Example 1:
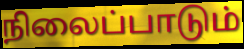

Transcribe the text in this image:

நிலைப்பாடும்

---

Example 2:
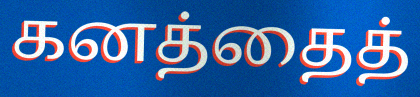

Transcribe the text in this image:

கனத்தைத்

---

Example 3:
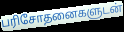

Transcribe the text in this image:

பரிசோதனைகளுடன்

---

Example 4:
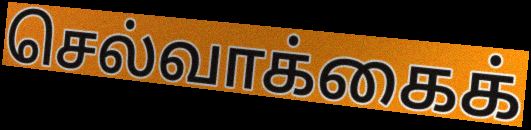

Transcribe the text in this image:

செல்வாக்கைக்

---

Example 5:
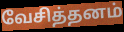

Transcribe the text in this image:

வேசித்தனம்